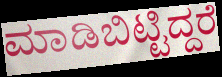
ಮಾಡಿಬಿಟ್ಟಿದ್ದರೆ